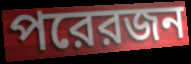
পরেরজন